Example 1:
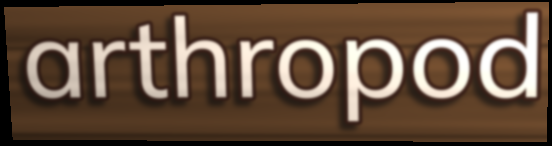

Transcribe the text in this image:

arthropod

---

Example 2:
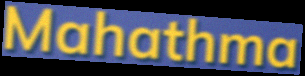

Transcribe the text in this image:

Mahathma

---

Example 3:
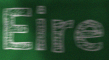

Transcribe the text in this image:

Eire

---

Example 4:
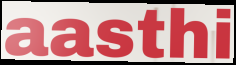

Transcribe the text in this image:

aasthi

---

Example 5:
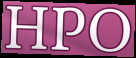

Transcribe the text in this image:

HPO